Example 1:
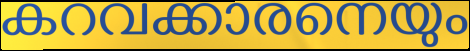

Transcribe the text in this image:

കറവക്കാരനെയും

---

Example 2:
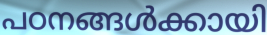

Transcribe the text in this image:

പഠനങ്ങൾക്കായി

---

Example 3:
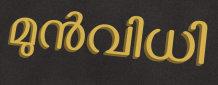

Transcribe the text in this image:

മുൻവിധി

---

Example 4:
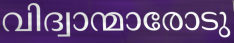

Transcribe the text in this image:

വിദ്വാന്മാരോടു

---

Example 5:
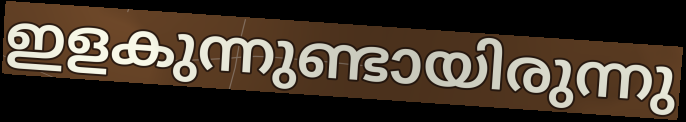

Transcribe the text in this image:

ഇളകുന്നുണ്ടായിരുന്നു